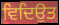
ਵਿਦਿਉਤ